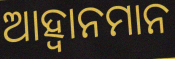
ଆହ୍ୱାନମାନ